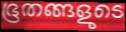
ഭൂതങ്ങളുടെ